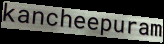
kancheepuram